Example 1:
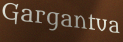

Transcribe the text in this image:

Gargantua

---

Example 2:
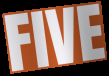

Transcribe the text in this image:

FIVE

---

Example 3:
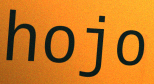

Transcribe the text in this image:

hojo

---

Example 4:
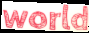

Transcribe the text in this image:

world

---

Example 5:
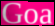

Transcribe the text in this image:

Goa